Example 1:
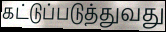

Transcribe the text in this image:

கட்டுப்படுத்துவது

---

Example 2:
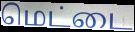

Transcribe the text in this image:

மெட்டை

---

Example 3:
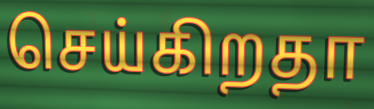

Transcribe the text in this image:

செய்கிறதா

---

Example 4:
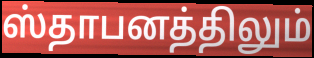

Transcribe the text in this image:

ஸ்தாபனத்திலும்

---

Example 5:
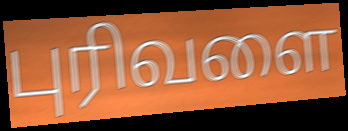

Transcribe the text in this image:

புரிவளை